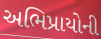
અભિપ્રાયોની